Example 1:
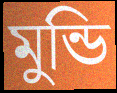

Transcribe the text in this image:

মুন্ডি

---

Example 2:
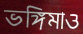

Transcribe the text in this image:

ভঙ্গিমাও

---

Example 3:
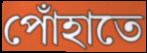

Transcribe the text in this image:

পোঁহাতে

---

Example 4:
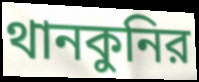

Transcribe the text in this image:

থানকুনির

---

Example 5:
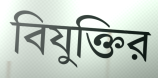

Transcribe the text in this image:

বিযুক্তির